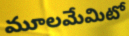
మూలమేమిటో